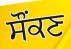
ਸੌਂਕਣ